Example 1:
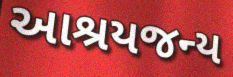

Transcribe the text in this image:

આશ્રયજન્ય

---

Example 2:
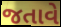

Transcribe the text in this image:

જતાવે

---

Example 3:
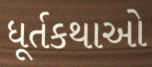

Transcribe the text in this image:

ધૂર્તકથાઓ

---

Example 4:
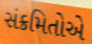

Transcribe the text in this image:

સંક્રમિતોએ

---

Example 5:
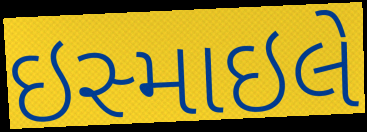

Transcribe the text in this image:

ઇસ્માઇલે